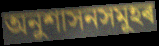
অনুশাসনসমূহৰ